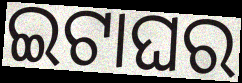
ଇଟାଘର